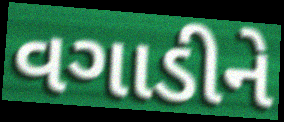
વગાડીને